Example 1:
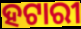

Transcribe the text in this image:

ହଟାରୀ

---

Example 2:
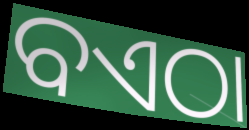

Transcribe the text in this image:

ବଏଠା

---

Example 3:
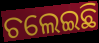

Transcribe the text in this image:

ଚଲେଇଛି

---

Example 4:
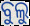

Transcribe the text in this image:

ବୁଲୁ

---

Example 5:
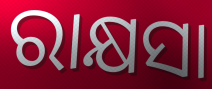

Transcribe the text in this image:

ରାକ୍ଷସା